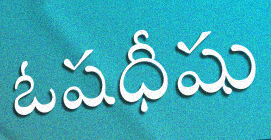
ఓషధీషు